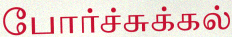
போர்ச்சுக்கல்